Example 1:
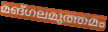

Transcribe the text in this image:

മങ്ഗലമുത്തമം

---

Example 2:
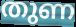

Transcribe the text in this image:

തുണ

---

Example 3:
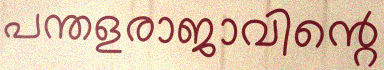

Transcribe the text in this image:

പന്തളരാജാവിന്റെ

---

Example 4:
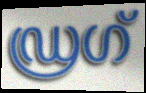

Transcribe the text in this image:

ഡ്രഗ്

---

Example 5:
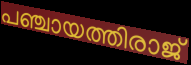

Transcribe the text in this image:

പഞ്ചായത്തിരാജ്